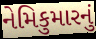
નેમિકુમારનું